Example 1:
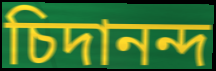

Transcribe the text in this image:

চিদানন্দ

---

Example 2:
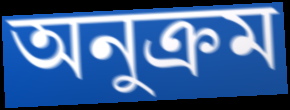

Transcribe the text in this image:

অনুক্ৰম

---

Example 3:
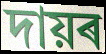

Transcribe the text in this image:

দায়ৰ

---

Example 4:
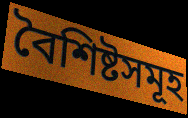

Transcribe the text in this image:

বৈশিষ্টসমূহ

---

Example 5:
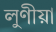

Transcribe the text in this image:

লুণীয়া